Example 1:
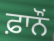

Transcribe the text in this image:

ਫ਼ਾਨੌਂ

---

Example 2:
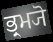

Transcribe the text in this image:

ਭ੍ਰਮ੍ਯੋ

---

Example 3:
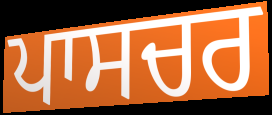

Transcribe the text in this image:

ਪਾਸਚਰ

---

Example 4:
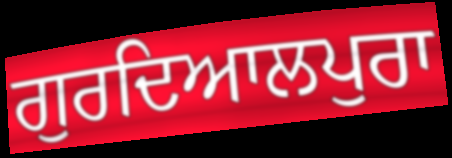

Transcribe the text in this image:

ਗੁਰਦਿਆਲਪੁਰਾ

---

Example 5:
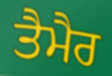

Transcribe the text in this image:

ਤੈਮੈਰ